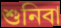
শুনিবা